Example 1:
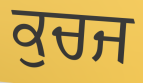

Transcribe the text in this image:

ਕੁਚਜ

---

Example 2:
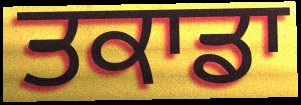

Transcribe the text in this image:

ਤਕਾਡਾ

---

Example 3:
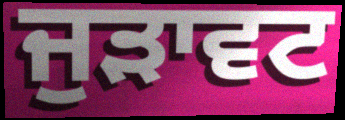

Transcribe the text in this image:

ਜੁੜਾਵਟ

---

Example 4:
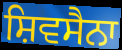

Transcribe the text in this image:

ਸ਼ਿਵਸੈਨਾ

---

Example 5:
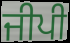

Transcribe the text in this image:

ਜੀਪੀ